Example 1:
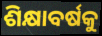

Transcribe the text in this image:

ଶିକ୍ଷାବର୍ଷକୁ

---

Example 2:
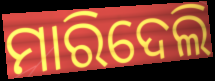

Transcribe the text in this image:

ମାରିଦେଲି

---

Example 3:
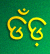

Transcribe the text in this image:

ଡଁଡ଼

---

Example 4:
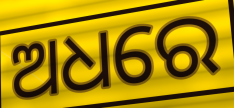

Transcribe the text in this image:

ଅଧରେ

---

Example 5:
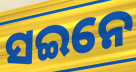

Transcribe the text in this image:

ସଇନେ